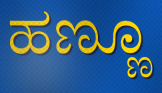
ಹಣ್ಣೂ